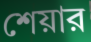
শেয়ার